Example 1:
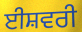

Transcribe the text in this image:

ਈਸ਼ਵਰੀ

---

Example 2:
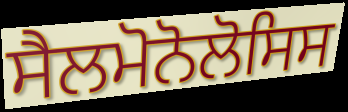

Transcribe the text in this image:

ਸੈਲਮੋਨੋਲੋਸਿਸ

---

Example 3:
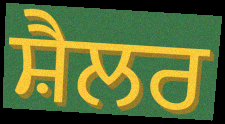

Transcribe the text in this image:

ਸ਼ੈਲਰ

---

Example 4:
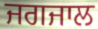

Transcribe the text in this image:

ਜਗਜਾਲ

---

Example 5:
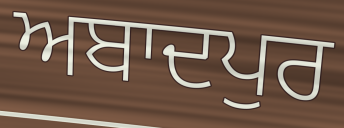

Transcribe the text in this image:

ਅਬਾਦਪੁਰ